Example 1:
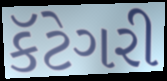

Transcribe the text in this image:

કૅટેગરી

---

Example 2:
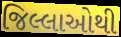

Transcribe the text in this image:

જિલ્લાઓથી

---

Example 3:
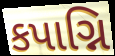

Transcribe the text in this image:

કપાગ્નિ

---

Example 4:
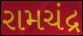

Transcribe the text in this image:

રામચંદ્ર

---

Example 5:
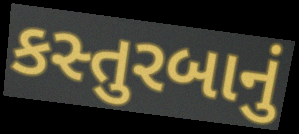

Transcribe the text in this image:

કસ્તુરબાનું